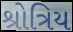
શ્રોત્રિય